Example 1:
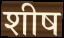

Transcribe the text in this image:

शीष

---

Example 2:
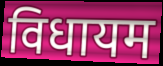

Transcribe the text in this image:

विधायम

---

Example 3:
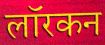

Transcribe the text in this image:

लॉरकन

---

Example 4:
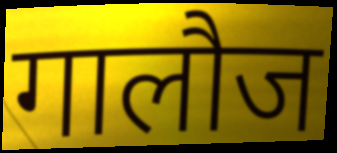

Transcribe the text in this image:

गालौज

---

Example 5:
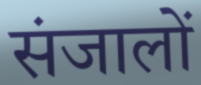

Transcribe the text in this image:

संजालों